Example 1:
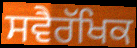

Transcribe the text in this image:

ਸਵੈਰੱਖਿਕ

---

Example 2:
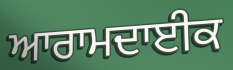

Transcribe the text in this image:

ਆਰਾਮਦਾਈਕ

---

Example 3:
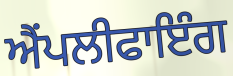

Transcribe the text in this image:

ਐਂਪਲੀਫਾਇੰਗ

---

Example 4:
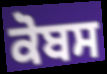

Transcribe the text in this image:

ਕੋਬਸ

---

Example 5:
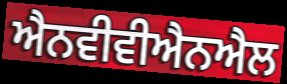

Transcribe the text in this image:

ਐਨਵੀਵੀਐਨਐਲ